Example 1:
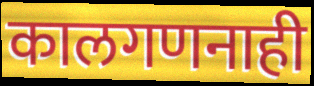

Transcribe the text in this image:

कालगणनाही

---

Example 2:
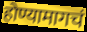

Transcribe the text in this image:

होण्यामागचं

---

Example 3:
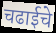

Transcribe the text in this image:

चढाईचे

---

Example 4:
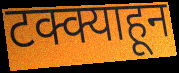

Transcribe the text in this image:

टक्क्याहून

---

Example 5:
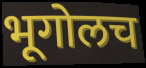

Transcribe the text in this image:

भूगोलच